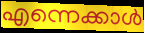
എന്നെക്കാൾ